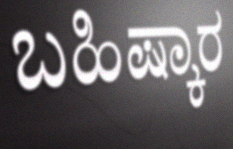
ಬಹಿಷ್ಕಾರ